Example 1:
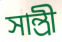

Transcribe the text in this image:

সান্ত্রী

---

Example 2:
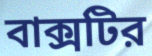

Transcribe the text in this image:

বাক্সটির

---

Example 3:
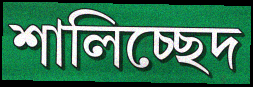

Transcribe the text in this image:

শালিচ্ছেদ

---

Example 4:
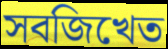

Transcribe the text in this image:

সবজিখেত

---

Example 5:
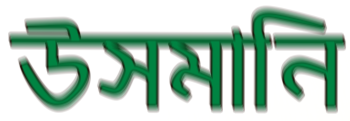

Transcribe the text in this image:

উসমানি